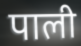
पाली